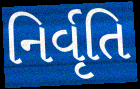
નિર્વૃતિ